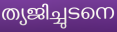
ത്യജിച്ചുടനെ